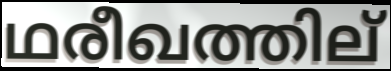
ഥരീഖത്തില്